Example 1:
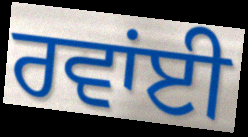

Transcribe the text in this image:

ਰਵਾਂਈ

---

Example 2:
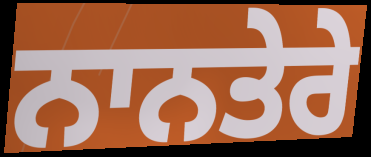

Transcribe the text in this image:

ਨਾਨਤੇਰੇ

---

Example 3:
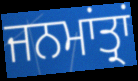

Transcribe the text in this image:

ਜਨਮਾਂਤ੍ਰਾਂ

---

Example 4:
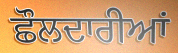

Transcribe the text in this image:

ਛੌਲਦਾਰੀਆਂ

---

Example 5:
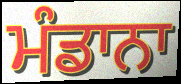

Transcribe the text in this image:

ਮੰਡਾਨਾ